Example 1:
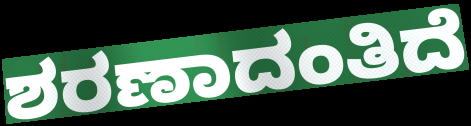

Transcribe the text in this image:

ಶರಣಾದಂತಿದೆ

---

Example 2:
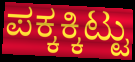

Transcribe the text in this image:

ಪಕ್ಕಕ್ಕಿಟ್ಟು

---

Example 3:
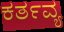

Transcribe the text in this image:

ಕರ್ತವ್ಯ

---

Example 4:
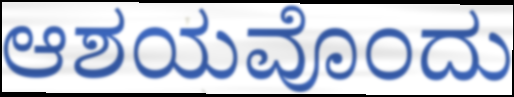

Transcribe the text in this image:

ಆಶಯವೊಂದು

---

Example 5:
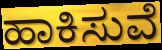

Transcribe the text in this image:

ಹಾಕಿಸುವೆ